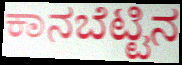
ಕಾನಬೆಟ್ಟಿನ